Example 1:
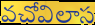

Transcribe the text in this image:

వచోవిలాస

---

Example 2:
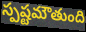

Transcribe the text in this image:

స్పష్టమౌతుంది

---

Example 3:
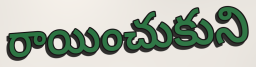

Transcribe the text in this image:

రాయించుకుని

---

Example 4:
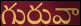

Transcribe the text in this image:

గురువా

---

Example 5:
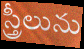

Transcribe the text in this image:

స్త్రీలును